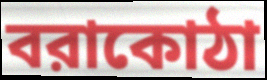
বরাকোঠা